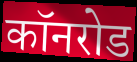
कॉनरोड